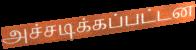
அச்சடிக்கப்பட்டன